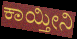
ಕಾಯ್ತೀನಿ